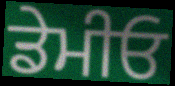
ਡੇਮੀਓ